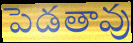
పెడతావు